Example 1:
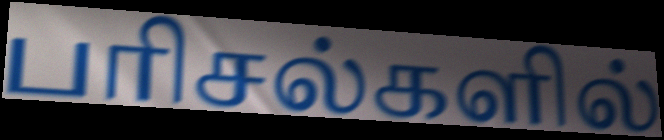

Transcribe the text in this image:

பரிசல்களில்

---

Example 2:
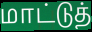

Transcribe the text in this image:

மாட்டுத்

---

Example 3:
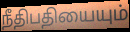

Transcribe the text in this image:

நீதிபதியையும்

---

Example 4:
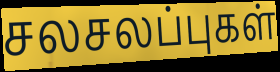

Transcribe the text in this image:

சலசலப்புகள்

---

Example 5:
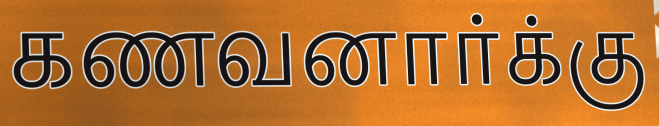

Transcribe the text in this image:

கணவனார்க்கு